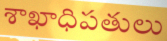
శాఖాధిపతులు